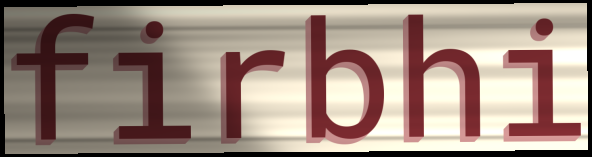
firbhi